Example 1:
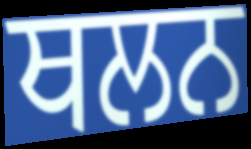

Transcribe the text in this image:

ਥਲਨ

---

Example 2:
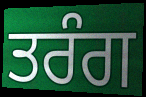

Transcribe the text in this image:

ਤਰੰਗ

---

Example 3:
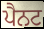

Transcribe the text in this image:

ਪੈਨਟ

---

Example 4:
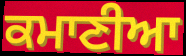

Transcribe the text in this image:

ਕਮਾਣੀਆ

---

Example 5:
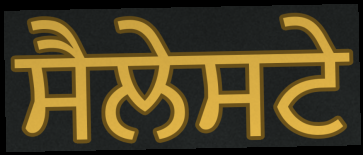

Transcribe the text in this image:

ਸੈਲੇਸਟੇ